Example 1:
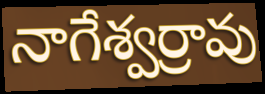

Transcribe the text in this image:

నాగేశ్వర్రావు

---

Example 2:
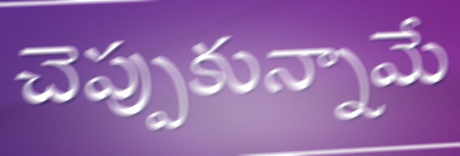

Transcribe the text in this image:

చెప్పుకున్నామే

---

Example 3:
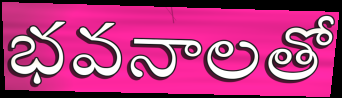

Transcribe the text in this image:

భవనాలతో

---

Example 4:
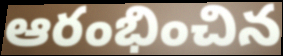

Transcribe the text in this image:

ఆరంభించిన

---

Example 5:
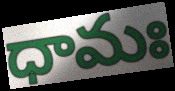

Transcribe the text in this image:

ధామః